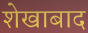
शेखाबाद